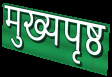
मुख्यपृष्ठ